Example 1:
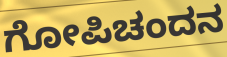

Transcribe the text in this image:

ಗೋಪಿಚಂದನ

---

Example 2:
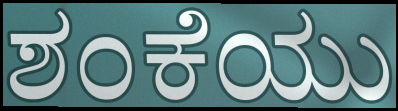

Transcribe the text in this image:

ಶಂಕೆಯು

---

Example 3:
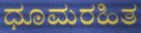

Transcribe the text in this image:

ಧೂಮರಹಿತ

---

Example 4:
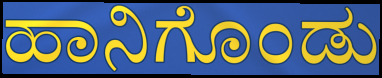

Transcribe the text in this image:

ಹಾನಿಗೊಂಡು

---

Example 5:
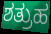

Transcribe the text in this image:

ಶತ್ರುಹ